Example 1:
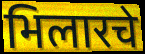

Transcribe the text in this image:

भिलारचे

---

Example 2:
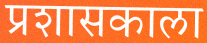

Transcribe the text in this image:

प्रशासकाला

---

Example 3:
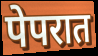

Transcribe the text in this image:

पेपरात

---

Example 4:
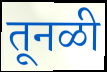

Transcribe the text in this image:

तूनळी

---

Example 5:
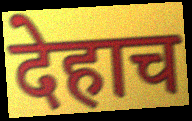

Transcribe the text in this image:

देहाच